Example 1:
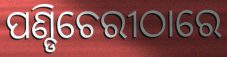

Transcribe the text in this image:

ପଣ୍ଡିଚେରୀଠାରେ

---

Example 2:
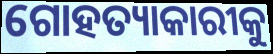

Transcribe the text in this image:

ଗୋହତ୍ୟାକାରୀକୁ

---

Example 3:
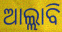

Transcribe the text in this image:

ଆଲ୍ଲାବି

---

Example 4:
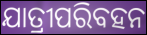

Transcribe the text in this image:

ଯାତ୍ରୀପରିବହନ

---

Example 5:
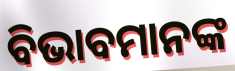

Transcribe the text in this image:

ବିଭାବମାନଙ୍କ